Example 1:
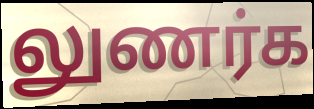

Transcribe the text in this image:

லுணர்க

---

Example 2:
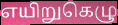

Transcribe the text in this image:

எயிறுகெழு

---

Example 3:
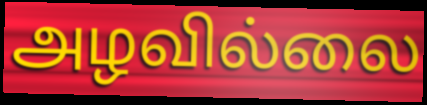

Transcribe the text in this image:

அழவில்லை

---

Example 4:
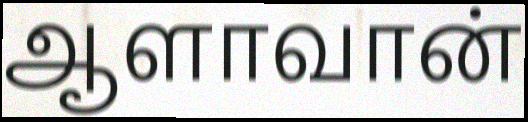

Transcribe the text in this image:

ஆளாவான்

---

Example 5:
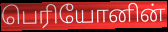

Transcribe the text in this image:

பெரியோனின்